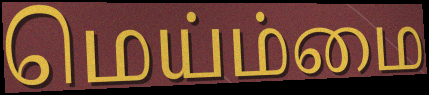
மெய்ம்மை